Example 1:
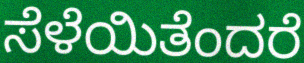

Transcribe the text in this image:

ಸೆಳೆಯಿತೆಂದರೆ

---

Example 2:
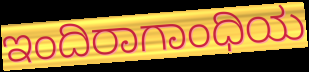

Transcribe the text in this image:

ಇಂದಿರಾಗಾಂಧಿಯ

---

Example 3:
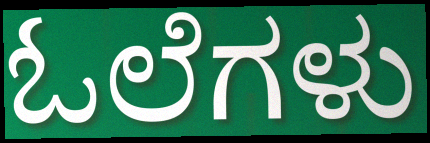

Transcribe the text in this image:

ಓಲೆಗಳು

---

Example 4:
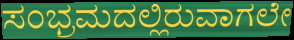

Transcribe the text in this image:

ಸಂಭ್ರಮದಲ್ಲಿರುವಾಗಲೇ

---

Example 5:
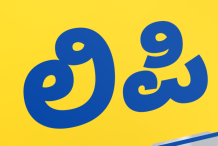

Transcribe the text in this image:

ಲಿಪಿ